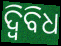
ଦ୍ଵିବିଧ